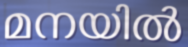
മനയിൽ